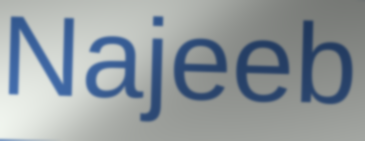
Najeeb